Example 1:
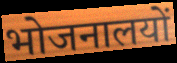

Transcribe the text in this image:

भोजनालयों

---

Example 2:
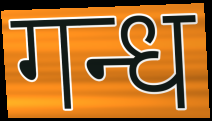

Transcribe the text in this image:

गन्ध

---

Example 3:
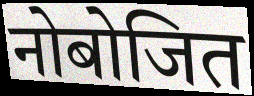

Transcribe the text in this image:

नोबोजित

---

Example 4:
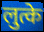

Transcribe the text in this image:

लुत्के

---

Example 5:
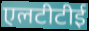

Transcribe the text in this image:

एलटीटीई